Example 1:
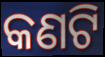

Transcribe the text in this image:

କଣଟି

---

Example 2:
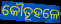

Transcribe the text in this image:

କୌତୂହଳେ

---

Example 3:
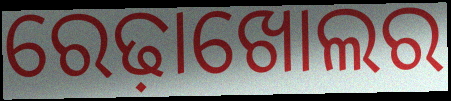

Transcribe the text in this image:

ରେଢ଼ାଖୋଲର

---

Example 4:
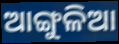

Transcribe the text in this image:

ଆଙ୍ଗୁଳିଆ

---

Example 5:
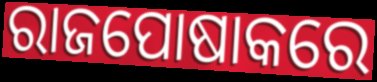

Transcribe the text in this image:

ରାଜପୋଷାକରେ